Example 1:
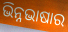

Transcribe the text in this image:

ଭିନ୍ନଭାଷାର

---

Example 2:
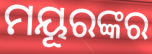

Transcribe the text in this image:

ମୟୂରଙ୍କର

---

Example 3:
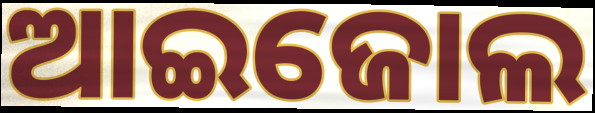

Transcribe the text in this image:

ଆଇଜୋଲ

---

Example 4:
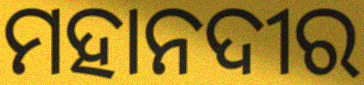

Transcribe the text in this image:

ମହାନଦୀର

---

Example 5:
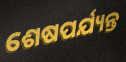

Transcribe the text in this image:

ଶେଷପର୍ଯ୍ୟନ୍ତ